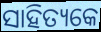
ସାହିତ୍ୟକେ